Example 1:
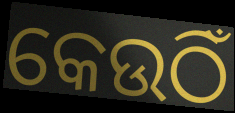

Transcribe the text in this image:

କେଉଠିଁ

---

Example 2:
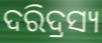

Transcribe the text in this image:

ଦରିଦ୍ରସ୍ୟ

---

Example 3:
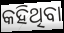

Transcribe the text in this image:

କହିଥିବା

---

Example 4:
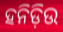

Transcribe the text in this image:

ହନିଡ଼ିଉ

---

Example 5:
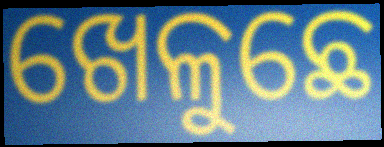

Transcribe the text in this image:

ଖେଳୁଛେ